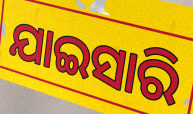
ଯାଇସାରି